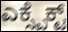
ಎಕ್ಸ್ಪೆಕ್ಟ್